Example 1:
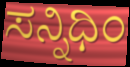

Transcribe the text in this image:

ಸನ್ನಿಧಿಂ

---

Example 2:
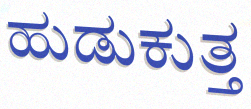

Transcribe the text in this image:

ಹುಡುಕುತ್ತ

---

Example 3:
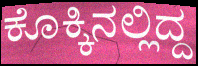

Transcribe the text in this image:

ಕೊಕ್ಕಿನಲ್ಲಿದ್ದ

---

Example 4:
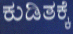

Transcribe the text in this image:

ಕುಡಿತಕ್ಕೆ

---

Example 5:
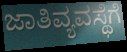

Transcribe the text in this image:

ಜಾತಿವ್ಯವಸ್ಥೆಗೆ